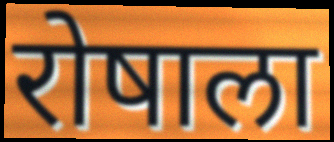
रोषाला